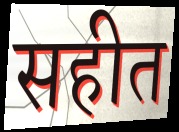
सहीत